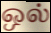
ஒல்